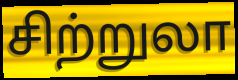
சிற்றுலா